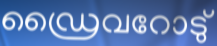
ഡ്രൈവറോടു്